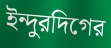
ইন্দুরদিগের